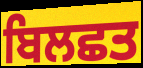
ਬਿਲਛਤ